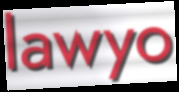
lawyo